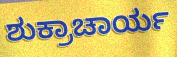
ಶುಕ್ರಾಚಾರ್ಯ